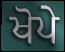
ਖੋਪੇ